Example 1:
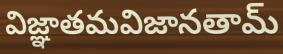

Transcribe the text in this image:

విజ్ఞాతమవిజానతామ్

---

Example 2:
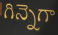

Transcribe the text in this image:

గిన్నెగా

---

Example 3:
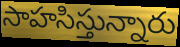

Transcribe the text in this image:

సాహసిస్తున్నారు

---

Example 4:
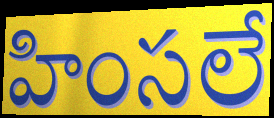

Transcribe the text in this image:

హింసలే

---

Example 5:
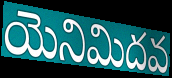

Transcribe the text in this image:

యెనిమిదవ